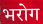
भरोग